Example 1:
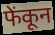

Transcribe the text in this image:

फेंकून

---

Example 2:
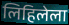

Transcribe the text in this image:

लिहिलेला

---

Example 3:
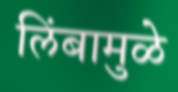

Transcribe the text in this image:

लिंबामुळे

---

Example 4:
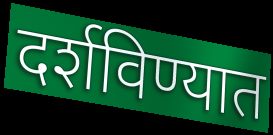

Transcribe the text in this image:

दर्शविण्यात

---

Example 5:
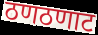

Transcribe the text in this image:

ठणठणाट